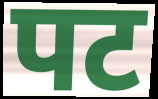
पट